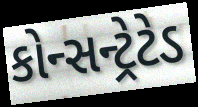
કોન્સન્ટ્રેટેડ